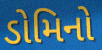
ડોમિનો